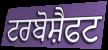
ਟਰਬੋਸ਼ੈਫਟ